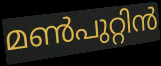
മൺപുറ്റിൻ